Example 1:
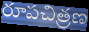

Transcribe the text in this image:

రూపచిత్రణ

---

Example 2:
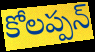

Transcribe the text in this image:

కోలప్పన్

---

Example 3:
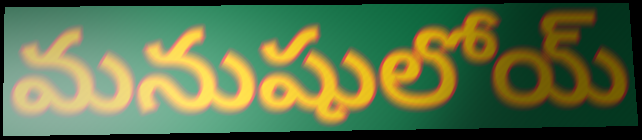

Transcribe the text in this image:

మనుషులోయ్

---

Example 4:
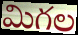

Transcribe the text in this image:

మిగల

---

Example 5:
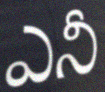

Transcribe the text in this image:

ఎనీ